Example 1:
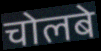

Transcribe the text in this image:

चोलबे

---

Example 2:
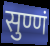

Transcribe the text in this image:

सुण्णं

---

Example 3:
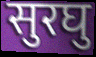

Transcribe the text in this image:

सुरघु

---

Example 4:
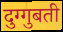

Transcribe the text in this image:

दुग्गुबती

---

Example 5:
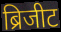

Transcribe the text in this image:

ब्रिजीट